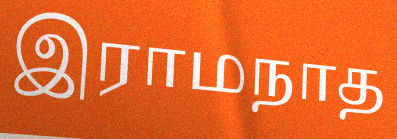
இராமநாத